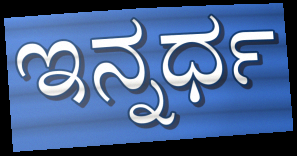
ಇನ್ನರ್ಧ